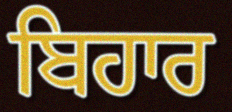
ਬਿਹਾਰ